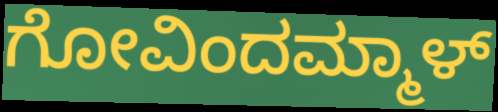
ಗೋವಿಂದಮ್ಮಾಳ್